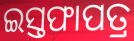
ଇସ୍ତଫାପତ୍ର